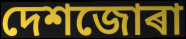
দেশজোৰা